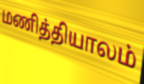
மணித்தியாலம்